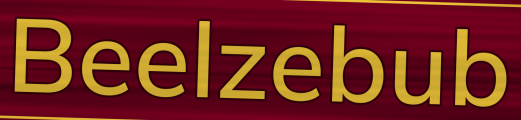
Beelzebub